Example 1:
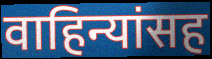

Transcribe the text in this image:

वाहिन्यांसह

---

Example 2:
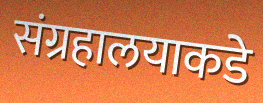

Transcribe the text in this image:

संग्रहालयाकडे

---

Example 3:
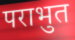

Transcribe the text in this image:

पराभुत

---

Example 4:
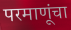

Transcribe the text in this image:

परमाणूंचा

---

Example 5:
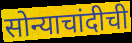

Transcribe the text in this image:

सोन्याचांदीची